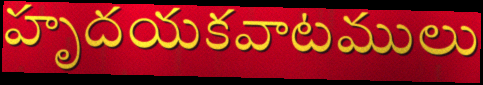
హృదయకవాటములు